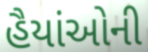
હૈયાંઓની